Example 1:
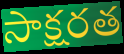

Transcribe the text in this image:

సాక్షరత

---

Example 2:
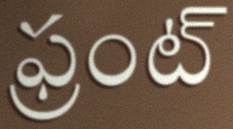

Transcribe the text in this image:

ఫ్రంట్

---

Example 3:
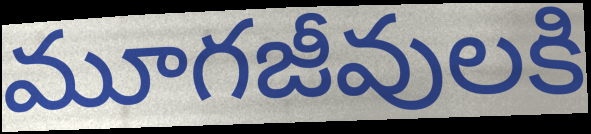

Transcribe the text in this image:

మూగజీవులకి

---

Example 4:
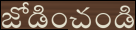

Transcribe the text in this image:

జోడించండి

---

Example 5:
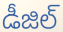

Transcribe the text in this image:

డీజిల్